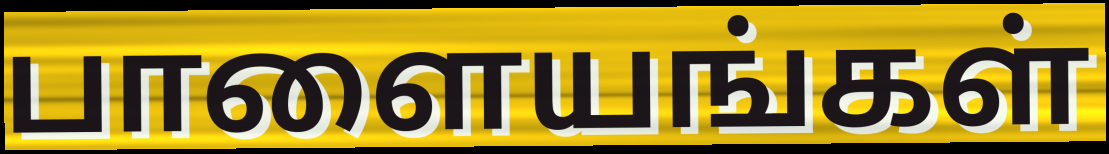
பாளையங்கள்